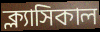
ক্ল্যাসিকাল